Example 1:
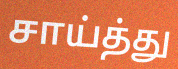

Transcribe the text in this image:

சாய்த்து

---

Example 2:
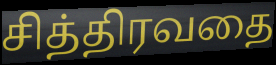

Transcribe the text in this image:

சித்திரவதை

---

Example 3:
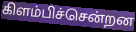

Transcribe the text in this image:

கிளம்பிச்சென்றன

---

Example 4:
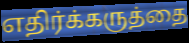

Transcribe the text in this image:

எதிர்க்கருத்தை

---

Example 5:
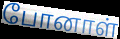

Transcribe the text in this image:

போனாள்